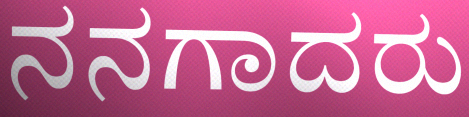
ನನಗಾದರು